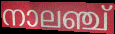
നാലഞ്ച്